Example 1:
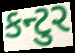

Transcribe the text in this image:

કન્ટુર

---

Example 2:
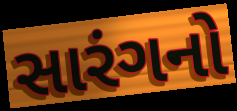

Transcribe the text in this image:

સારંગનો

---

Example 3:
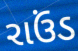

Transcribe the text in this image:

રાઉંડ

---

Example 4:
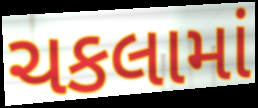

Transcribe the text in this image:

ચકલામાં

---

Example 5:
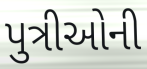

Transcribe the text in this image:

પુત્રીઓની